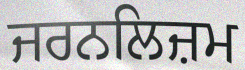
ਜਰਨਲਿਜ਼ਮ